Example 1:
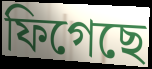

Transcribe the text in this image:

ফিগেছে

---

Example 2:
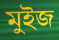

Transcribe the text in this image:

মুইজ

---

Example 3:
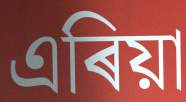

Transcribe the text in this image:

এৰিয়া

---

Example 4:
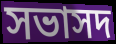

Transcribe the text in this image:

সভাসদ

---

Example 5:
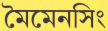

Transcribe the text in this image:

মৈমেনসিং